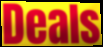
Deals